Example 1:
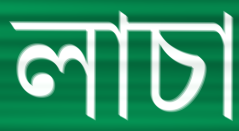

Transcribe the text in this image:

লাচা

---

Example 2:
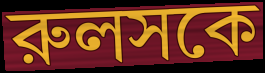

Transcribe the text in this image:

রুলসকে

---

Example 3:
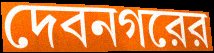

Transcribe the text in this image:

দেবনগরের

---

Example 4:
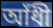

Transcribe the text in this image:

আঁধী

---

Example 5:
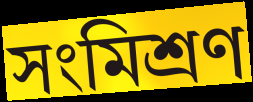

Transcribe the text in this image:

সংমিশ্রণ